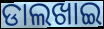
ଡାଲଖାଇ